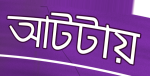
আটটায়